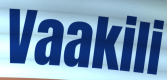
Vaakili